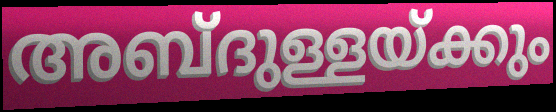
അബ്ദുള്ളയ്ക്കും